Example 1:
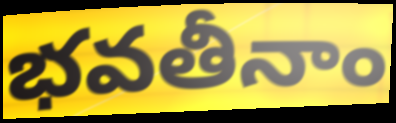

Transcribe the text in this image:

భవతీనాం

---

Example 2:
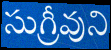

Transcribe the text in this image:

సుగ్రీవుని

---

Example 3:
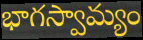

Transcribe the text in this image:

భాగస్వామ్యం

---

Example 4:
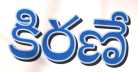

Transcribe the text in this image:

కిరణే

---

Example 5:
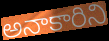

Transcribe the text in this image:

అనాకారిని